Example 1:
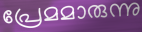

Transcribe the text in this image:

പ്രേമമാരുന്നു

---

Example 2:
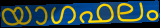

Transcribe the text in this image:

യാഗഫലം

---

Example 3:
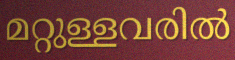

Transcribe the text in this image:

മറ്റുള്ളവരിൽ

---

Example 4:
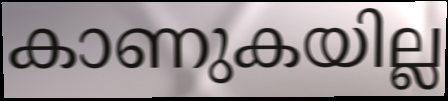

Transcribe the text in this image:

കാണുകയില്ല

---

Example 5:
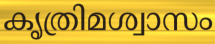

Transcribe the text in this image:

കൃത്രിമശ്വാസം